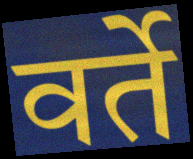
वर्ते